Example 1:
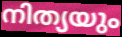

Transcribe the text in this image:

നിത്യയും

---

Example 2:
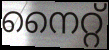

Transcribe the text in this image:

നൈറ്റ്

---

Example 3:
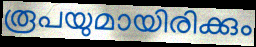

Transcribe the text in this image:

രൂപയുമായിരിക്കും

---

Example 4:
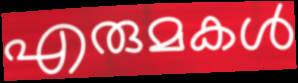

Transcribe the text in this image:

എരുമകൾ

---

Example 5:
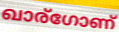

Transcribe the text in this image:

ഖാര്ഗോണ്